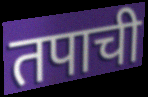
तपाची